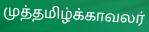
முத்தமிழ்க்காவலர்